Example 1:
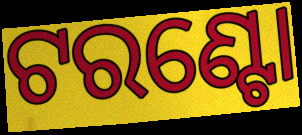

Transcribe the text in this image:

ଟରଣ୍ଟୋ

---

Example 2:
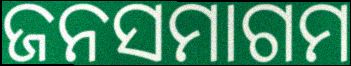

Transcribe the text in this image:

ଜନସମାଗମ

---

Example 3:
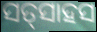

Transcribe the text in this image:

ସତ୍‍ସାହସ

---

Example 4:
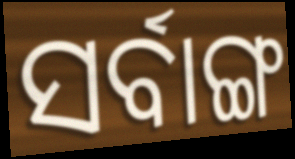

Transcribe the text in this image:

ସର୍ବାଙ୍ଗ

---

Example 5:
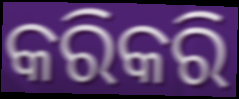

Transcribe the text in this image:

କରିକରି